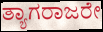
ತ್ಯಾಗರಾಜರೇ